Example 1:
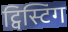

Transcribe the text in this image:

ट्विस्टिंग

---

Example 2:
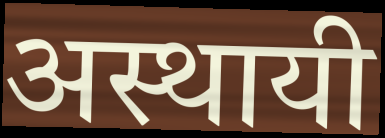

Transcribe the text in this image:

अस्थायी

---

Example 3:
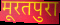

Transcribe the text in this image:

मूरतपुरा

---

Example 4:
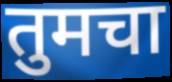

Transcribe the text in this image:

तुमचा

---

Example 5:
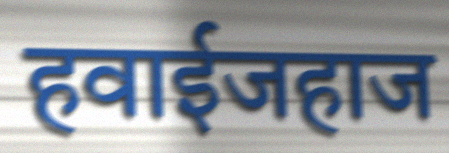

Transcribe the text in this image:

हवाईजहाज